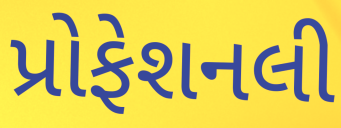
પ્રોફેશનલી